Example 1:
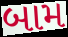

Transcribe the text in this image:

બામ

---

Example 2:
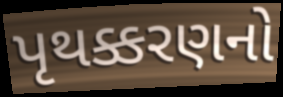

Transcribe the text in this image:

પૃથક્કરણનો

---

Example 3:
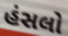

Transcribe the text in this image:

હંસલો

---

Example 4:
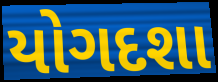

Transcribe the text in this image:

યોગદશા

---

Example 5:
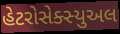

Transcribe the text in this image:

હેટરોસેક્સ્યુઅલ